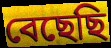
বেছেছি